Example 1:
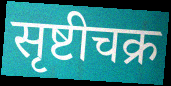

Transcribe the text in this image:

सृष्टीचक्र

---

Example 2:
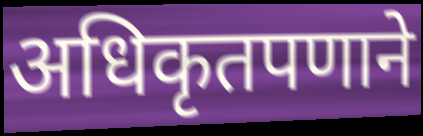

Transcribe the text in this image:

अधिकृतपणाने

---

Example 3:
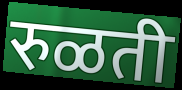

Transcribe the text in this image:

रुळती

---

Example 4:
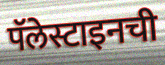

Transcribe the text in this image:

पॅलेस्टाइनची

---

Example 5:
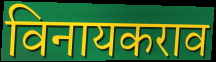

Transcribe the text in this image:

विनायकराव